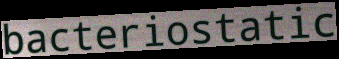
bacteriostatic